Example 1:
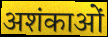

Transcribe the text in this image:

अशंकाओं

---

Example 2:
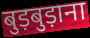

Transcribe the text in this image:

बुड़बुड़ाना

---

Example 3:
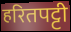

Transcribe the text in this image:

हरितपट्टी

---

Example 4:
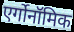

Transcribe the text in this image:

एर्गोनॉमिक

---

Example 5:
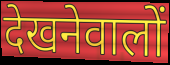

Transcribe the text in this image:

देखनेवालों